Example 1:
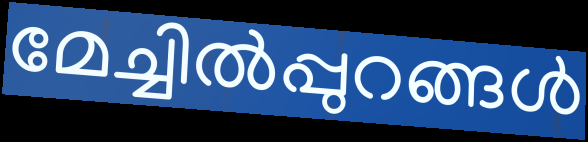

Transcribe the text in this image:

മേച്ചിൽപ്പുറങ്ങൾ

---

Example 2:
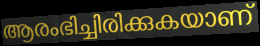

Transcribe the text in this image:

ആരംഭിച്ചിരിക്കുകയാണ്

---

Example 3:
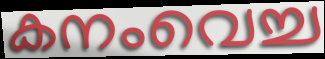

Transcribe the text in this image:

കനംവെച്ച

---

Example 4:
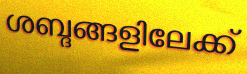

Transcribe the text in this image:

ശബ്ദങ്ങളിലേക്ക്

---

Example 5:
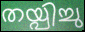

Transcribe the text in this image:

തയ്പിച്ചു